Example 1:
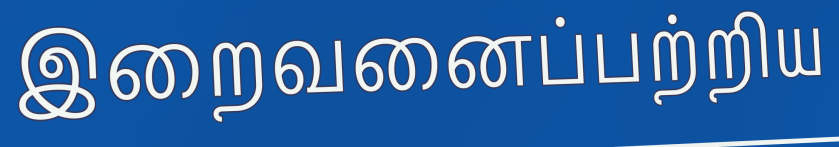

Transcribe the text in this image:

இறைவனைப்பற்றிய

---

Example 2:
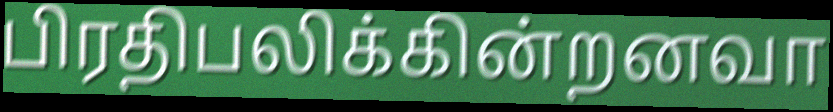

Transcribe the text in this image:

பிரதிபலிக்கின்றனவா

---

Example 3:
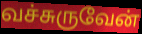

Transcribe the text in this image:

வச்சுருவேன்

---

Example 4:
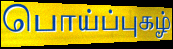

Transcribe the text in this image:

பொய்ப்புகழ்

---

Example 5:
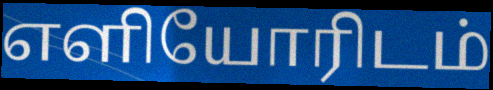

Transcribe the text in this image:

எளியோரிடம்